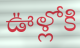
ఊళ్లోకి